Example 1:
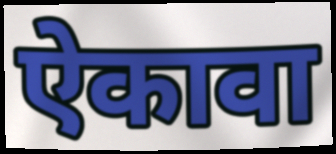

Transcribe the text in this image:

ऐकावा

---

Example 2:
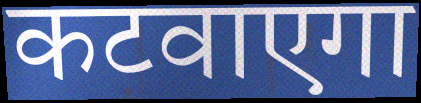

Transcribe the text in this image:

कटवाएगा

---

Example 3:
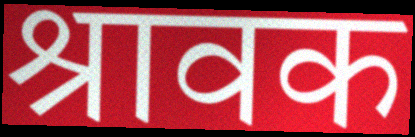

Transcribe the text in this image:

श्रावक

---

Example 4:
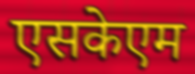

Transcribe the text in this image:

एसकेएम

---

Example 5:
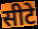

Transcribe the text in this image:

सीटे